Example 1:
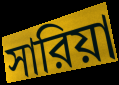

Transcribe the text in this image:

সারিয়া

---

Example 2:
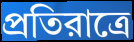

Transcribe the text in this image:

প্রতিরাত্রে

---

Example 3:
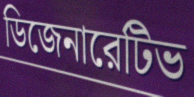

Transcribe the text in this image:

ডিজেনারেটিভ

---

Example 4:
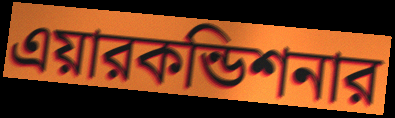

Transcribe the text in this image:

এয়ারকন্ডিশনার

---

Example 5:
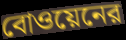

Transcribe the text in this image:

বোওয়েনের